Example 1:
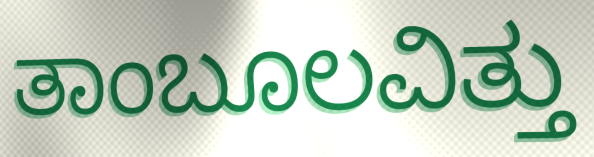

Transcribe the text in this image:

ತಾಂಬೂಲವಿತ್ತು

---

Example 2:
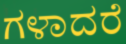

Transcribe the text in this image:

ಗಳಾದರೆ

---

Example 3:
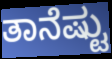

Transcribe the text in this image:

ತಾನೆಷ್ಟು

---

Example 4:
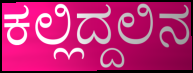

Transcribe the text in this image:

ಕಲ್ಲಿದ್ದಲಿನ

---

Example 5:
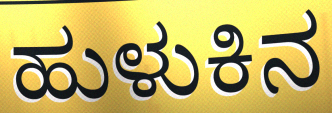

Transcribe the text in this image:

ಹುಳುಕಿನ